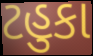
ટહુકા